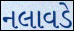
નલાવડે